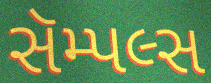
સૅમ્પલ્સ